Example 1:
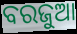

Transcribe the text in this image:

ବରଜୁଆ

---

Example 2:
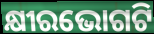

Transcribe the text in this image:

କ୍ଷୀରଭୋଗଟି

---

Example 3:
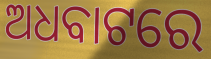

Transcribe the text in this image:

ଅଧବାଟରେ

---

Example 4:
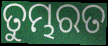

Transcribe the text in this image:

ତୁମ୍ଭରତ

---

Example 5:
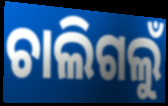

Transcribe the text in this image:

ଚାଲିଗଲୁଁ